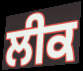
ਲੀਕ